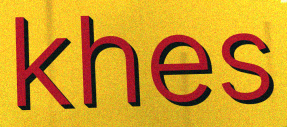
khes